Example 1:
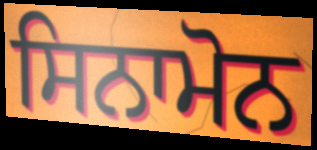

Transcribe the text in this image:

ਸਿਨਾਮੋਨ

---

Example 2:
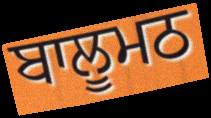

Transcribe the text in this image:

ਬਾਲੂਮਠ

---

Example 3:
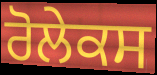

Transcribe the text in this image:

ਰੋਲੇਕਸ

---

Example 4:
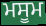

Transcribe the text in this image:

ਮਸੂਮ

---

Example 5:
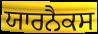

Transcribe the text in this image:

ਯਾਰਨੈਕਸ